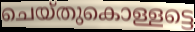
ചെയ്തുകൊള്ളട്ടെ